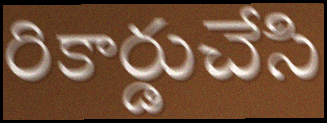
రికార్డుచేసి